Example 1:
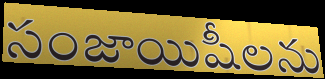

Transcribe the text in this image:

సంజాయిషీలను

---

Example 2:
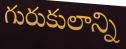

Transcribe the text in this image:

గురుకులాన్ని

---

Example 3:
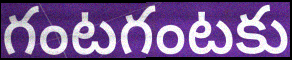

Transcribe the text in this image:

గంటగంటకు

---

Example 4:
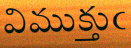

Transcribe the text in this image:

విముక్తుఁ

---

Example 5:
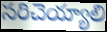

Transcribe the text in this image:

సరిచెయ్యాలి